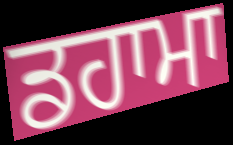
ਡਹਾਮਾ